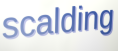
scalding